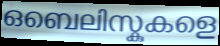
ഒബെലിസ്കുകളെ